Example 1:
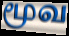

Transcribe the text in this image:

மூவ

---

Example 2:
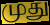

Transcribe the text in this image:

முது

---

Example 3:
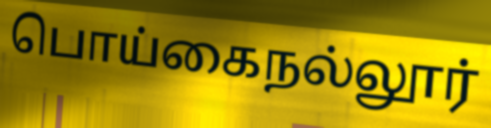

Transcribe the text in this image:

பொய்கைநல்லூர்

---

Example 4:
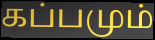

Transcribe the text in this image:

கப்பமும்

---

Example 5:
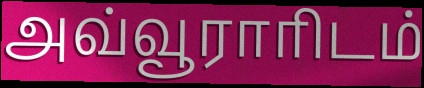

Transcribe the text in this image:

அவ்வூராரிடம்